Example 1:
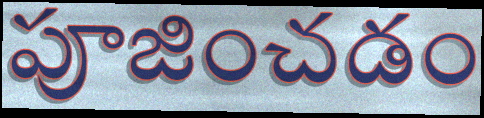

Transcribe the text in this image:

పూజించడం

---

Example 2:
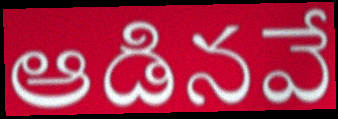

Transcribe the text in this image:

ఆడినవే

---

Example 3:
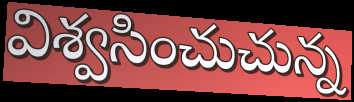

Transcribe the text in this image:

విశ్వసించుచున్న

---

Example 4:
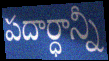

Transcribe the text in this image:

పదార్ధాన్నీ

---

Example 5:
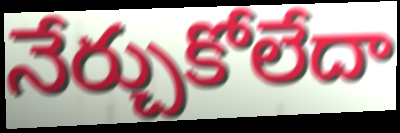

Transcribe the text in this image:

నేర్చుకోలేదా